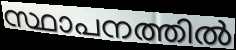
സ്ഥാപനത്തിൽ